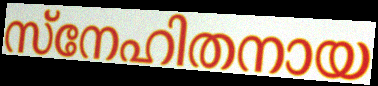
സ്നേഹിതനായ